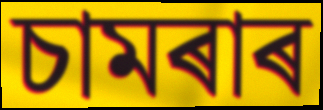
চামৰাৰ